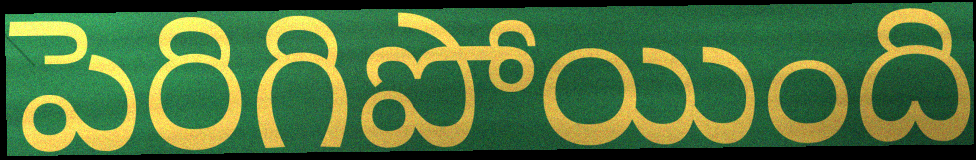
పెరిగిపోయింది